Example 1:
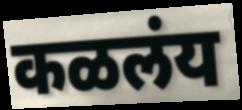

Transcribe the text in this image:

कळलंय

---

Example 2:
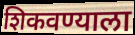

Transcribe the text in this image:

शिकवण्याला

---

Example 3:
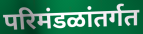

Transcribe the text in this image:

परिमंडळांतर्गत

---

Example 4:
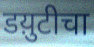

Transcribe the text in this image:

डय़ुटीचा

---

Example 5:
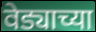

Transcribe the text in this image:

वेड्याच्या